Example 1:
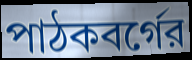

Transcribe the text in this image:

পাঠকবর্গের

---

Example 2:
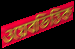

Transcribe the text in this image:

ওয়েবভিত্তিক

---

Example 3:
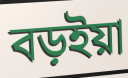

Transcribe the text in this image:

বড়ইয়া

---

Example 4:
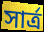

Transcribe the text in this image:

সার্ত্র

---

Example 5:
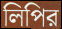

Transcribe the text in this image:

লিপির